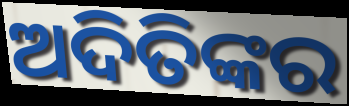
ଅଦିତିଙ୍କର